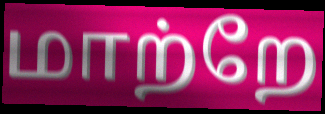
மாற்றே